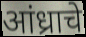
आंध्राचे